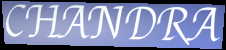
CHANDRA